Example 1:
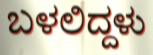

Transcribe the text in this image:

ಬಳಲಿದ್ದಳು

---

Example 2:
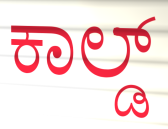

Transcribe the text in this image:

ಕಾಲ್ಡ್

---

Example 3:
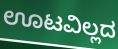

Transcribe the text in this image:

ಊಟವಿಲ್ಲದ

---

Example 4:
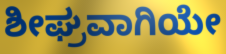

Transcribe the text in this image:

ಶೀಘ್ರವಾಗಿಯೇ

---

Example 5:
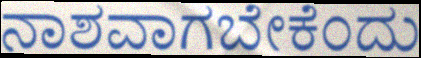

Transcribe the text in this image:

ನಾಶವಾಗಬೇಕೆಂದು